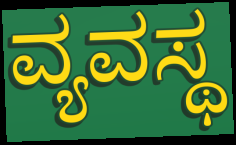
ವ್ಯವಸ್ಥ